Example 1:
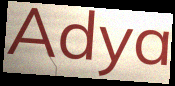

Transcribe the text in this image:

Adya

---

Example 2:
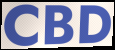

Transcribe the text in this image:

CBD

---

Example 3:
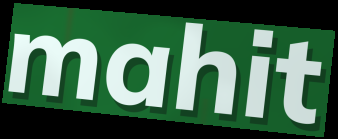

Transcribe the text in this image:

mahit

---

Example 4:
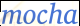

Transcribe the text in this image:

mocha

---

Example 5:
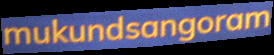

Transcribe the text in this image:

mukundsangoram